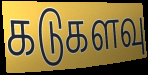
கடுகளவு